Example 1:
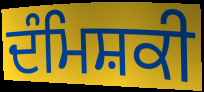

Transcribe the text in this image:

ਦੰਮਿਸ਼ਕੀ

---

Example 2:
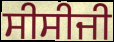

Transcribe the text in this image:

ਸੀਸੀਜੀ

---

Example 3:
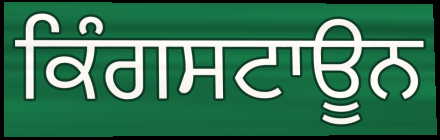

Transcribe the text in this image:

ਕਿੰਗਸਟਾਊਨ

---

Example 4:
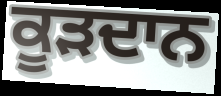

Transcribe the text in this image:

ਕੂੜਦਾਨ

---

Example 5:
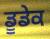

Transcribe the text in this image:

ਡੂਡੇਕ